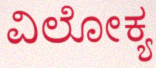
ವಿಲೋಕ್ಯ